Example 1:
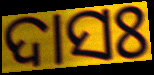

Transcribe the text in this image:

ଦାସଃ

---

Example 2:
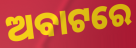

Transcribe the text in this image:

ଅବାଟରେ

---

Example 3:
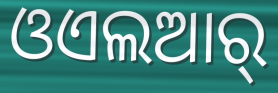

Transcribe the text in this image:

ଓଏଲଆର୍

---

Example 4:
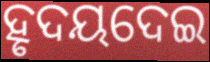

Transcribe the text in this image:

ହୃଦୟଦେଇ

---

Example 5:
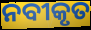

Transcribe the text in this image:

ନବୀକୃତ